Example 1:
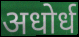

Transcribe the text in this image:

अधोर्ध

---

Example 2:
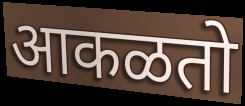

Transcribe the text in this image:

आकळतो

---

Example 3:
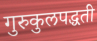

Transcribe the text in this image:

गुरुकुलपद्धती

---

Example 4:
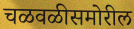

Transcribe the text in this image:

चळवळीसमोरील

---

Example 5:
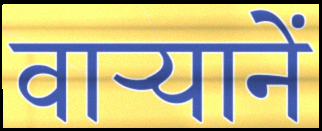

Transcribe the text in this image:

वार्‍यानें